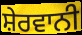
ਸ਼ੇਰਵਾਨੀ